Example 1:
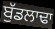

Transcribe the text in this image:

ਬੁੱਡਲਾਢਾ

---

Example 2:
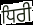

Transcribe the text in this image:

ਧਿਰੀ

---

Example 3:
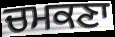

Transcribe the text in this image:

ਚਮਕਣਾ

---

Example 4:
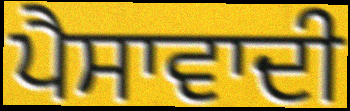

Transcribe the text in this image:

ਪੈਸਾਵਾਦੀ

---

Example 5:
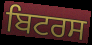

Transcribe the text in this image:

ਬਿਟਰਸ